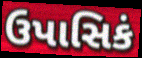
ઉપાસિકં